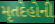
મૃતદેહોની